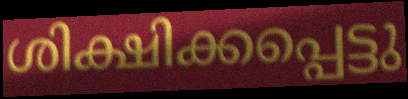
ശിക്ഷിക്കപ്പെട്ടു